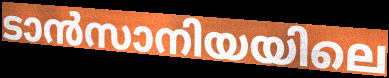
ടാൻസാനിയയിലെ